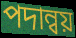
পদান্বয়